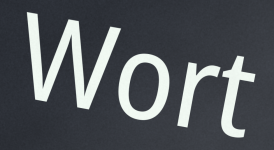
Wort